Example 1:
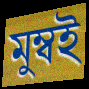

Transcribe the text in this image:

মুম্বই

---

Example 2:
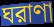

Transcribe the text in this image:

ঘরাণা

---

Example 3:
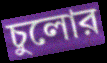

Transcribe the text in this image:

চুলোর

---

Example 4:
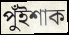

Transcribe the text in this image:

পুঁইশাক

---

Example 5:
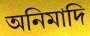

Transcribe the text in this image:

অনিমাদি